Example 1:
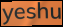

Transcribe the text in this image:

yeshu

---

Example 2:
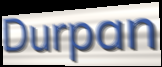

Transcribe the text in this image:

Durpan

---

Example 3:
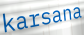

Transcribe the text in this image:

karsana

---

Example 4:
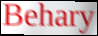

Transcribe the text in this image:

Behary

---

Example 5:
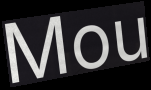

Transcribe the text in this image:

Mou